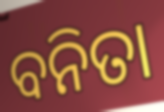
ବନିତା